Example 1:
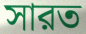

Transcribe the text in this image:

সারত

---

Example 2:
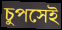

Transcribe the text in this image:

চুপসেই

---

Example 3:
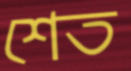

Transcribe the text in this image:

শেত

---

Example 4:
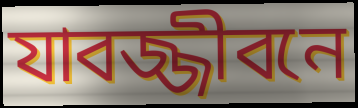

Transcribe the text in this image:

যাবজ্জীবনে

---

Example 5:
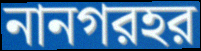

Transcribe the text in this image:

নানগরহর